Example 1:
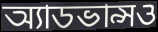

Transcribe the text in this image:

অ্যাডভান্সও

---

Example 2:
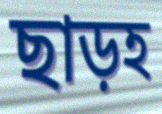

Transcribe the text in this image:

ছাড়হ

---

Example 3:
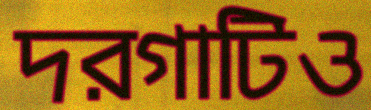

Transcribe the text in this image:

দরগাটিও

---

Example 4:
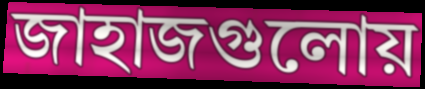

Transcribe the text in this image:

জাহাজগুলোয়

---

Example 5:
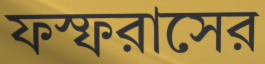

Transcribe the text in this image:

ফস্ফরাসের